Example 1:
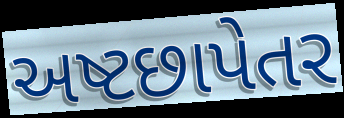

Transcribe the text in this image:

અષ્ટછાપેતર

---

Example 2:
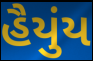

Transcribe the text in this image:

હૈયુંય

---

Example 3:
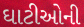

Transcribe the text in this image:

ઘાટીઓની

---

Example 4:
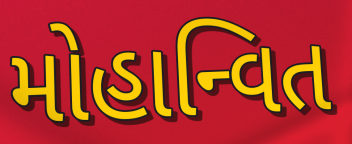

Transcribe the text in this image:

મોહાન્વિત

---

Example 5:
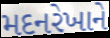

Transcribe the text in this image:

મદનરેખાને